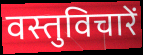
वस्तुविचारें